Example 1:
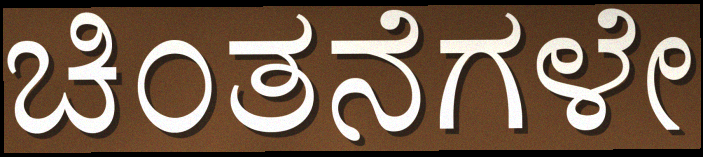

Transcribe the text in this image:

ಚಿಂತನೆಗಳೇ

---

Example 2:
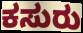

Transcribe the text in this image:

ಕಸುರು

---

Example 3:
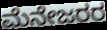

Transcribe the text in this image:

ಮೆನೇಜರರ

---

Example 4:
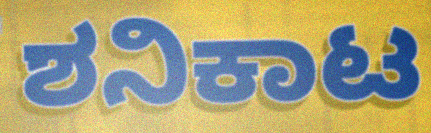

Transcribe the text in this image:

ಶನಿಕಾಟ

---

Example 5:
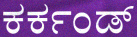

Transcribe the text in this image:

ಕರ್ಕಂಡ್